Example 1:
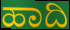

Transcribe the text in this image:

ಹಾದಿ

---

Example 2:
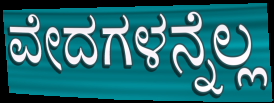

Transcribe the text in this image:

ವೇದಗಳನ್ನೆಲ್ಲ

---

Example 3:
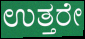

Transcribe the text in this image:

ಉತ್ತರೇ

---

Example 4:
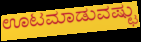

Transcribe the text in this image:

ಊಟಮಾಡುವಷ್ಟು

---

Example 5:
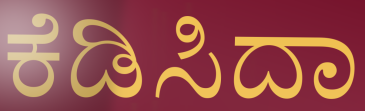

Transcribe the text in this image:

ಕೆಡಿಸಿದಾ